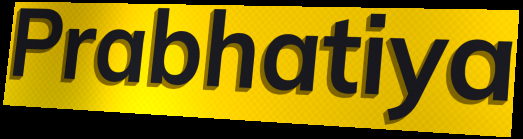
Prabhatiya